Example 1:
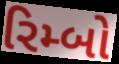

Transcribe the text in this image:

રિમ્બો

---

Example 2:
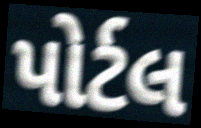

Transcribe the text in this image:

પોર્ટલ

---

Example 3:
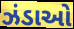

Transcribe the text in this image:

ઝંડાઓ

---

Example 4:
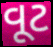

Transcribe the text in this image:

વૂટ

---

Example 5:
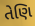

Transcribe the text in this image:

તેણિ